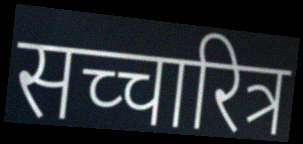
सच्चारित्र